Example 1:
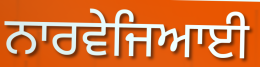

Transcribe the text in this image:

ਨਾਰਵੇਜਿਆਈ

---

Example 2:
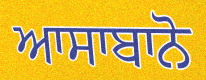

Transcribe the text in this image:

ਆਸਾਬਾਨੋ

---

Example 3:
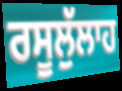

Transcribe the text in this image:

ਰਸੂਲੁੱਲਾਹ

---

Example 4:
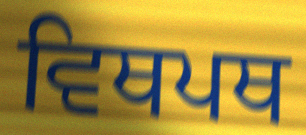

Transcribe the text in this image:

ਵਿਥਪਥ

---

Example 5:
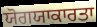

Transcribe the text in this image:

ਯੋਗਯਾਕਾਰਤਾ